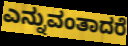
ಎನ್ನುವಂತಾದರೆ